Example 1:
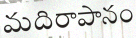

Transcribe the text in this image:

మదిరాపానం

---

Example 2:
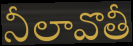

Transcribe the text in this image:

నీలావొతీ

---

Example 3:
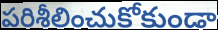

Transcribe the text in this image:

పరిశీలించుకోకుండా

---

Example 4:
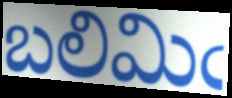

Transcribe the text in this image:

బలిమిఁ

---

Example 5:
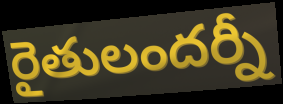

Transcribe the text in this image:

రైతులందర్నీ